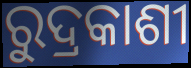
ରୁଦ୍ରକାଶୀ